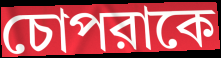
চোপরাকে